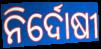
ନିର୍ଦୋଷୀ